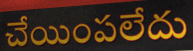
చేయింపలేదు